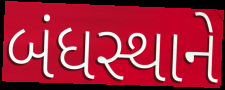
બંધસ્થાને